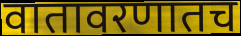
वातावरणातच